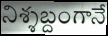
నిశ్శబ్దంగానే